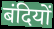
बंदियों